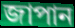
জাপান